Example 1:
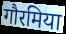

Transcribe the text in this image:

गौरमिया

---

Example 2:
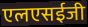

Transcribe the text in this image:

एलएसईजी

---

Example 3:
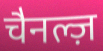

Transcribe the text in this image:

चैनल्ज़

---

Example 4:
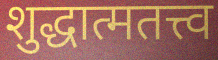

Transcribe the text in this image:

शुद्धात्मतत्त्व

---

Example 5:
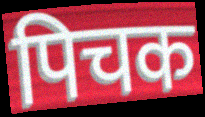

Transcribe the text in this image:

पिचक